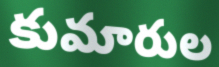
కుమారుల